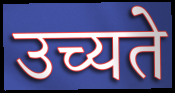
उच्यते